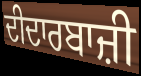
ਦੀਦਾਰਬਾਜ਼ੀ